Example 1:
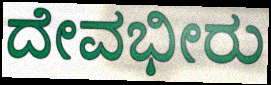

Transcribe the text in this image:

ದೇವಭೀರು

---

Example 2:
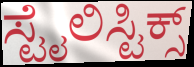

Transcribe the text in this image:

ಸ್ಟೈಲಿಸ್ಟಿಕ್ಸ್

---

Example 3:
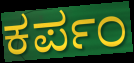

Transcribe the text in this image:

ಕರ್ಪಂ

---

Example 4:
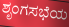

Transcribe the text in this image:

ಶೃಂಗಸಭೆಯ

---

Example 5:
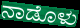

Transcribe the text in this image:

ನಾಡೊಳು